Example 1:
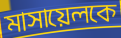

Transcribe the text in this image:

মাসায়েলকে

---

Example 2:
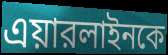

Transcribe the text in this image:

এয়ারলাইনকে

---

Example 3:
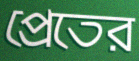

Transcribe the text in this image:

প্রেতের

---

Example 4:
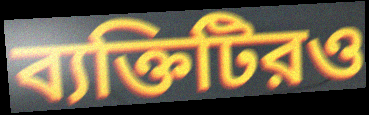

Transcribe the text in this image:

ব্যক্তিটিরও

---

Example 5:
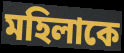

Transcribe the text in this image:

মহিলাকে